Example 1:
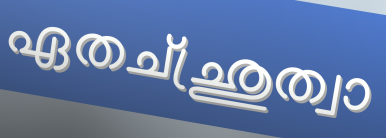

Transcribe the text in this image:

ഏതച്ഛ്രുത്വാ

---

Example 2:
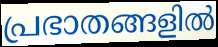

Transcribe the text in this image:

പ്രഭാതങ്ങളിൽ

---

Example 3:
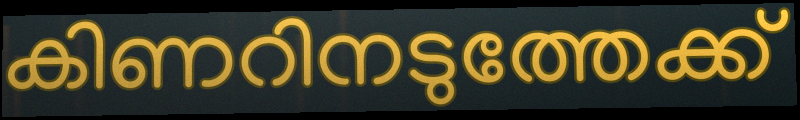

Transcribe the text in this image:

കിണറിനടുത്തേക്ക്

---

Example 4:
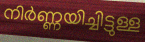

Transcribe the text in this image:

നിർണ്ണയിച്ചിട്ടുള്ള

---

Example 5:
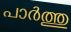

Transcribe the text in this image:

പാർത്തു